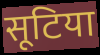
सूटिया